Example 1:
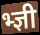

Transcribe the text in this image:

भ्ज्ञी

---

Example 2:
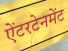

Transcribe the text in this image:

ऐंटरटेनमेंट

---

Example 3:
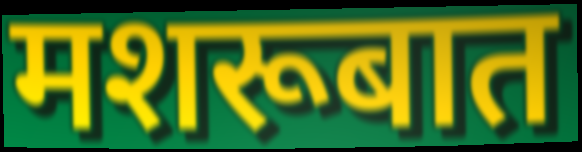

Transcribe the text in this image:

मशरूबात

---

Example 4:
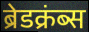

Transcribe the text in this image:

ब्रेडक्रंब्स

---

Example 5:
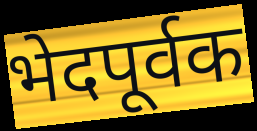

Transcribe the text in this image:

भेदपूर्वक